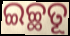
ଇଚ୍ଛତୂ